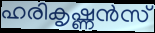
ഹരികൃഷ്ണൻസ്